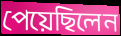
পেয়েছিলেন